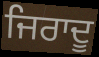
ਜਿਰਾਦੂ